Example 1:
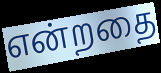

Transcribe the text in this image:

என்றதை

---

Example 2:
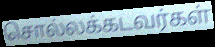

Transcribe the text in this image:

சொல்லக்கடவர்கள்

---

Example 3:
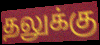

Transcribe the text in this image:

தலுக்கு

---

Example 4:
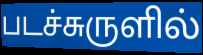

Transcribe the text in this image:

படச்சுருளில்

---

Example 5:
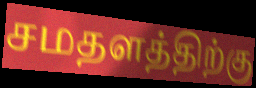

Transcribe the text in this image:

சமதளத்திற்கு